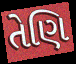
તેણિ